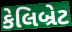
કેલિબ્રેટ